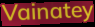
Vainatey